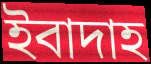
ইবাদাহ